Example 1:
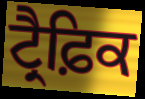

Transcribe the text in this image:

ਟ੍ਰੈਫ਼ਿਕ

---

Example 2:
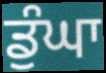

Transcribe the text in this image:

ਡੁੰਘਾ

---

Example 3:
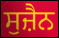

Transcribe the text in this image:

ਸੁਜ਼ੈਨ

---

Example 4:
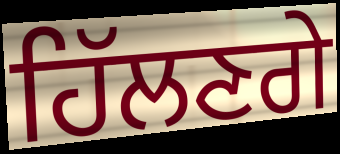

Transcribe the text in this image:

ਹਿੱਲਣਗੇ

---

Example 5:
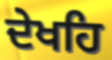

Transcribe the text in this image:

ਦੇਖਹਿ